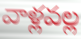
వాళ్లవల్ల